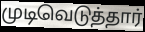
முடிவெடுத்தார்